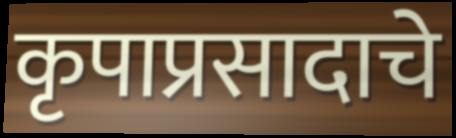
कृपाप्रसादाचे